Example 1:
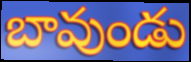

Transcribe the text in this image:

బావుండు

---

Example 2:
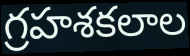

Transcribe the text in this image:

గ్రహశకలాల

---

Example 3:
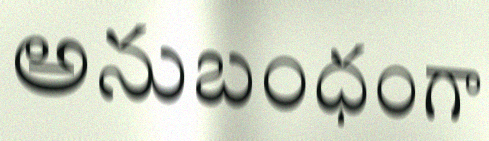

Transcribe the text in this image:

అనుబంధంగా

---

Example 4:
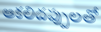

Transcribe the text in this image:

ఆకలిదప్పులతో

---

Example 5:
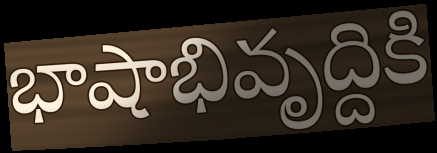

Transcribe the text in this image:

భాషాభివృద్దికి